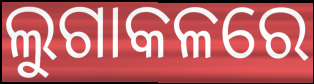
ଲୁଗାକଳରେ